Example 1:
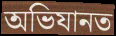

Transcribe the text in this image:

অভিযানত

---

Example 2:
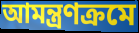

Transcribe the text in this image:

আমন্ত্ৰণক্ৰমে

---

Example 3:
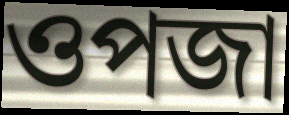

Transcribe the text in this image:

ওপজা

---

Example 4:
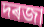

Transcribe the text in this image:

দৰজা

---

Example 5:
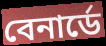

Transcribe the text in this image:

বেনাৰ্ডে